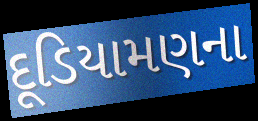
દૂડિયામણના